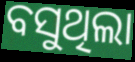
ବସୁଥିଲା